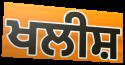
ਖਲੀਸ਼